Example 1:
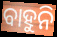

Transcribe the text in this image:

ବାହୁନି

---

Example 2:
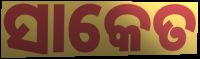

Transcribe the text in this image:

ସାକେତ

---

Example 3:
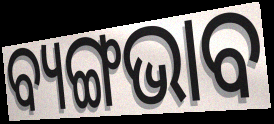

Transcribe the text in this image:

ବ୍ୟଙ୍ଗଭାବ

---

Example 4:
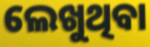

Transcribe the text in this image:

ଲେଖୁଥିବା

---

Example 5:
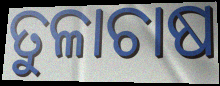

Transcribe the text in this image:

ତୁଳାଚାଷ